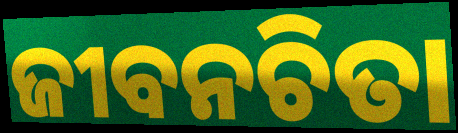
ଜୀବନଚିତା